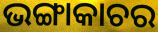
ଭଙ୍ଗାକାଚର